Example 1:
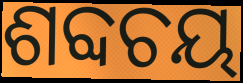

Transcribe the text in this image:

ଶବ୍ଦଚୟ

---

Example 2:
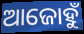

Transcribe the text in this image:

ଆଜୋହୁଁ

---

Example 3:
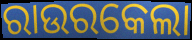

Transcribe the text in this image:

ରାଉରକେଲା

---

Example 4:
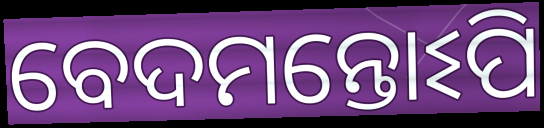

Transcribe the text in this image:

ବେଦମନ୍ତୋଽପି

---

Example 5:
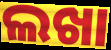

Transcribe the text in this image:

ଲଖା